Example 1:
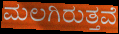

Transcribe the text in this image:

ಮಲಗಿರುತ್ತವೆ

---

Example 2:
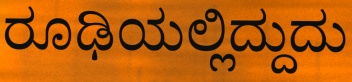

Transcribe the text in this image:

ರೂಢಿಯಲ್ಲಿದ್ದುದು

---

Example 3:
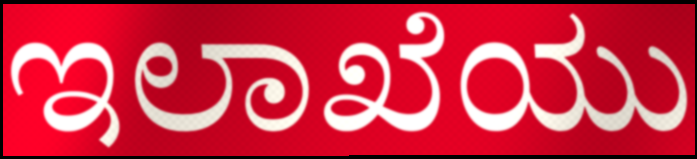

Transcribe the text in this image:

ಇಲಾಖೆಯು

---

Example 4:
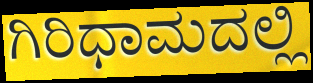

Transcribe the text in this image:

ಗಿರಿಧಾಮದಲ್ಲಿ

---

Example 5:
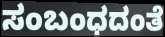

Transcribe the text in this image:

ಸಂಬಂಧದಂತೆ